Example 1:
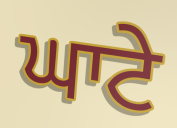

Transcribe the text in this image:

ਘਾਟੇ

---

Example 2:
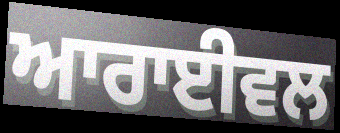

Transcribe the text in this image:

ਆਰਾਈਵਲ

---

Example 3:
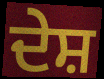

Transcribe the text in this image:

ਦੇਸ਼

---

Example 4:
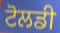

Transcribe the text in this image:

ਟੋਲਡੀ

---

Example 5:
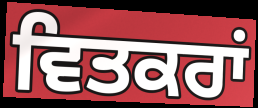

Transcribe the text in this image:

ਵਿਤਕਰਾਂ